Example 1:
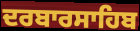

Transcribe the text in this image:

ਦਰਬਾਰਸਾਹਿਬ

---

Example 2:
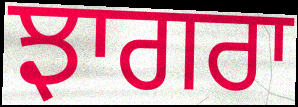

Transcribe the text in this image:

ਝਾਗਰਾ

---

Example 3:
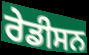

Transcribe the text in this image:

ਰੇਡੀਸਨ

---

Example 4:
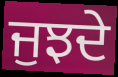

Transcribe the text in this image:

ਜੁਝਦੇ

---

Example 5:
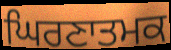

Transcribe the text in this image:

ਘਿਰਣਾਤਮਕ